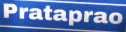
Prataprao